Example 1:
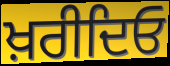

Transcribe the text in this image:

ਖ਼ਰੀਦਿਓ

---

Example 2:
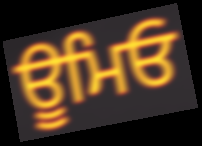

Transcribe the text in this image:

ਊਮਿਓ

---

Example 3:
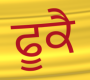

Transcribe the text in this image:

ਫੂਕੈ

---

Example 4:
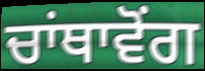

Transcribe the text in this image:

ਚਾਂਥਾਵੋਂਗ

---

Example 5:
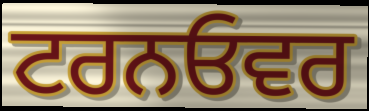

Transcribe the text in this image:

ਟਰਨਓਵਰ